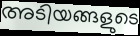
അടിയങ്ങളുടെ